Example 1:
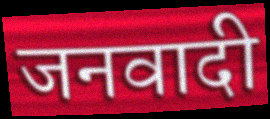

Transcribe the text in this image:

जनवादी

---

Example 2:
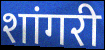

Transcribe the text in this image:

शांगरी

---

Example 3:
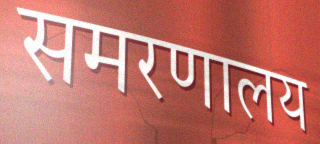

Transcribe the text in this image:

समरणालय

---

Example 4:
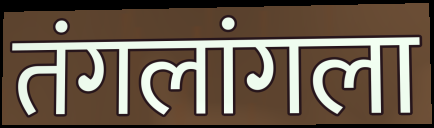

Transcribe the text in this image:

तंगलांगला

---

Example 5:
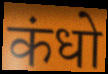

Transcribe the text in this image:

कंधो